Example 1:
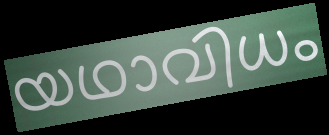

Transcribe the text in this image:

യഥാവിധം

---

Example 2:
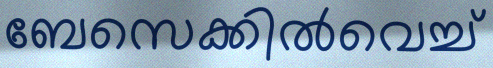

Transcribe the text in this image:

ബേസെക്കിൽവെച്ച്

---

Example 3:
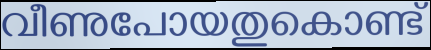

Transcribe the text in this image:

വീണുപോയതുകൊണ്ട്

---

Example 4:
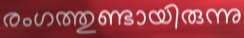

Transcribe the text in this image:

രംഗത്തുണ്ടായിരുന്നു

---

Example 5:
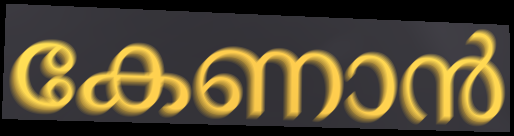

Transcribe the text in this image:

കേണാൻ